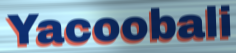
Yacoobali